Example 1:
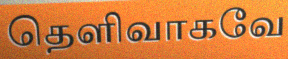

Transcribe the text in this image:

தெளிவாகவே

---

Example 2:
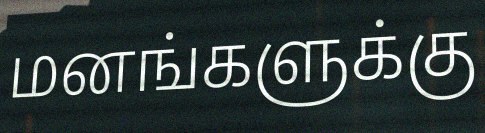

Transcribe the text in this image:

மனங்களுக்கு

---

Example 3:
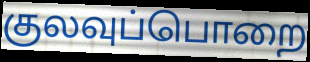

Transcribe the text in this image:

குலவுப்பொறை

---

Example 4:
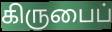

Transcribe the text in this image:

கிருபைப்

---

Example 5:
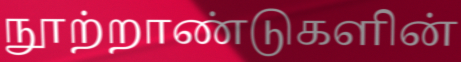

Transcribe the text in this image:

நூற்றாண்டுகளின்